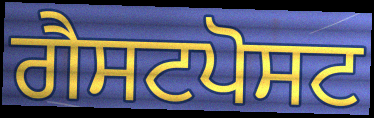
ਗੈਸਟਪੋਸਟ